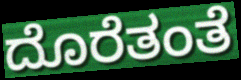
ದೊರೆತಂತೆ